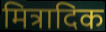
मित्रादिक